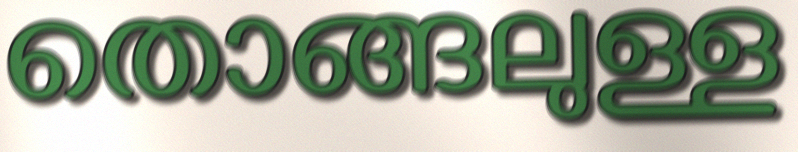
തൊങ്ങലുള്ള